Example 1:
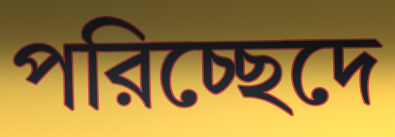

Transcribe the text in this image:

পরিচ্ছেদে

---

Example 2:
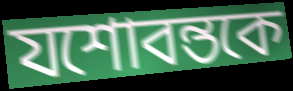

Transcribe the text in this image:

যশোবন্তকে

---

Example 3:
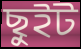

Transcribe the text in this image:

ছুইট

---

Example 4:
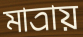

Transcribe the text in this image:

মাত্রায়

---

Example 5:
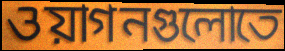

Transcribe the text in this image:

ওয়াগনগুলোতে